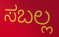
ಸಬಲ್ಲ